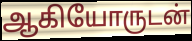
ஆகியோருடன்